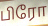
பிரோ